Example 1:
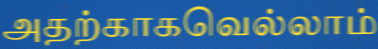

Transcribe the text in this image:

அதற்காகவெல்லாம்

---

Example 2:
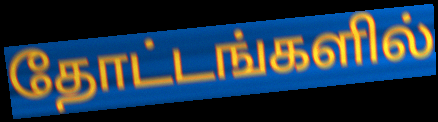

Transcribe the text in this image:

தோட்டங்களில்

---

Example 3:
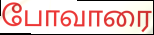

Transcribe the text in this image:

போவாரை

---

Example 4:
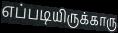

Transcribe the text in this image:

எப்படியிருக்காரு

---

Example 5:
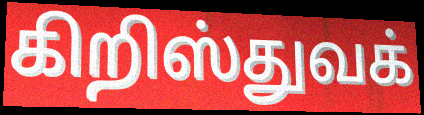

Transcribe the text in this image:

கிறிஸ்துவக்